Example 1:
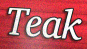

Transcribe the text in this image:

Teak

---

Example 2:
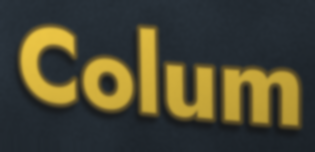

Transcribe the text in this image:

Colum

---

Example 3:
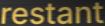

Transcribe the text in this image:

restant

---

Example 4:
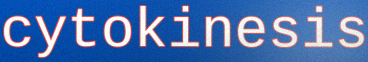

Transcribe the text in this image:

cytokinesis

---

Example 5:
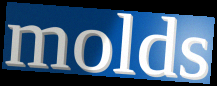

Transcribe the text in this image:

molds